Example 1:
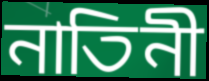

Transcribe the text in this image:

নাতিনী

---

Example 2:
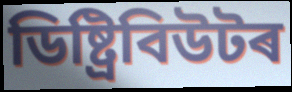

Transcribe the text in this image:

ডিষ্ট্ৰিবিউটৰ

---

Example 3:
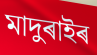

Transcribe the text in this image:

মাদুৰাইৰ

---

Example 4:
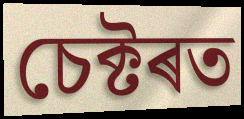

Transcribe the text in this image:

চেক্টৰত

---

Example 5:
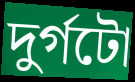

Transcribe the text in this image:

দুৰ্গটো